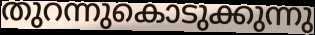
തുറന്നുകൊടുക്കുന്നു